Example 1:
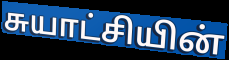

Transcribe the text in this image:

சுயாட்சியின்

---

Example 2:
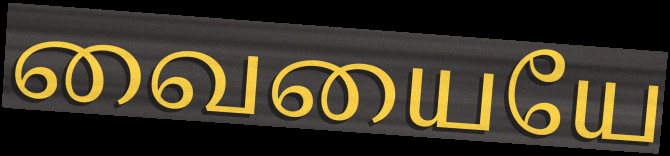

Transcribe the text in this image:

வையையே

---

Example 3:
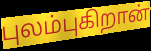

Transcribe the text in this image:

புலம்புகிறான்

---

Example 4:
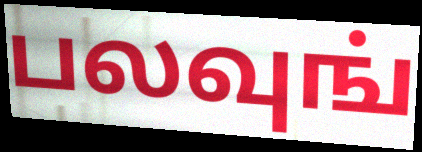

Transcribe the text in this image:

பலவுங்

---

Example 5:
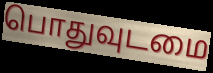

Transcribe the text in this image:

பொதுவுடமை